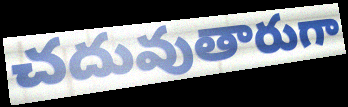
చదువుతారుగా